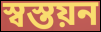
স্বস্তয়ন